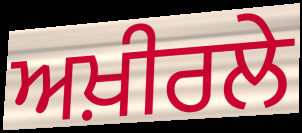
ਅਖ਼ੀਰਲੇ